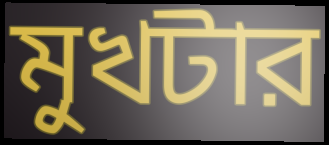
মুখটার